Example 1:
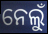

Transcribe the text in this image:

ନେଲୁଁ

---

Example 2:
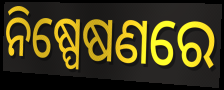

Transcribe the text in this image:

ନିଷ୍ପେଷଣରେ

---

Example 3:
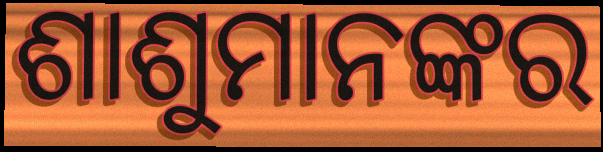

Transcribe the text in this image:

ଶାଶୁମାନଙ୍କର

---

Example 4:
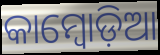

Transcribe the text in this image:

କାମ୍ବୋଡ଼ିଆ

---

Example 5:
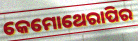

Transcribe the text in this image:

କେମୋଥେରାପିର